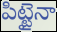
పిట్టైనా